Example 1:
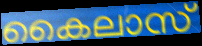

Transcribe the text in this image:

കൈലാസ്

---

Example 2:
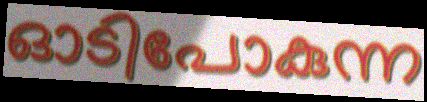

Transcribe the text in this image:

ഓടിപോകുന്ന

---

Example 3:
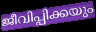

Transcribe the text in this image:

ജീവിപ്പിക്കയും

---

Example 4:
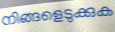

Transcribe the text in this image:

നിങ്ങളെടുക്കുക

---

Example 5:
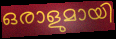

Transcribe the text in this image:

ഒരാളുമായി